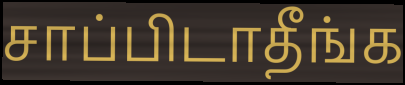
சாப்பிடாதீங்க